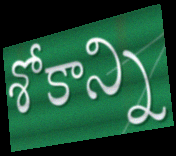
శోకాన్ని